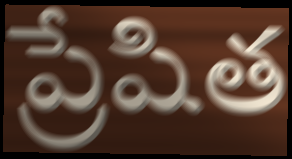
ప్రేషిత